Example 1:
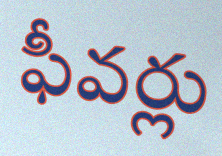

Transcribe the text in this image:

ఫీవర్లు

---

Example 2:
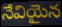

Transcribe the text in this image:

నేవియైన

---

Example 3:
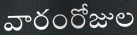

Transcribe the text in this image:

వారంరోజుల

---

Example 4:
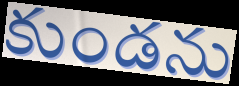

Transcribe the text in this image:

కుండను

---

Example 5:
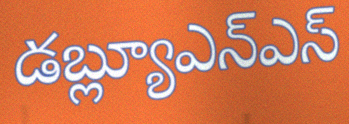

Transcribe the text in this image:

డబ్ల్యూఎన్ఎస్